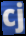
cj